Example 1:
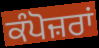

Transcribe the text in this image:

ਕੰਪੋਜ਼ਰਾਂ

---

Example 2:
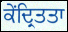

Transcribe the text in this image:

ਕੇਂਦ੍ਰਿਤਤਾ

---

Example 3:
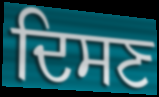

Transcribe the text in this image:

ਦਿਸਣ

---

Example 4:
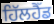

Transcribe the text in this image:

ਹਿੱਲਹੈੱਡ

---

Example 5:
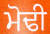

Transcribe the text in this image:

ਮੋਢੀ